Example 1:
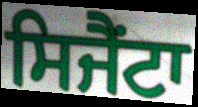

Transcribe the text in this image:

ਸਿਜੈਂਟਾ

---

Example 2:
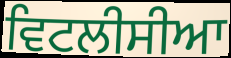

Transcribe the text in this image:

ਵਿਟਲੀਸੀਆ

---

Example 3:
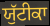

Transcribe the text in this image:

ਯੁੱਟੀਕਾ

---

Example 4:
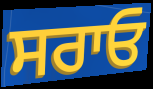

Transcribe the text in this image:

ਸਰਾਓ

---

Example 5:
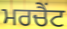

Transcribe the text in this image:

ਮਰਚੈਂਟ